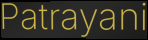
Patrayani